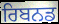
ਰਿਬਨਡ